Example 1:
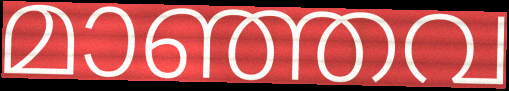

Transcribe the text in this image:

മാഞ്ഞവ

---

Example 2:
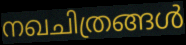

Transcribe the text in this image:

നഖചിത്രങ്ങൾ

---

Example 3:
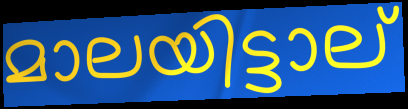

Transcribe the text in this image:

മാലയിട്ടാല്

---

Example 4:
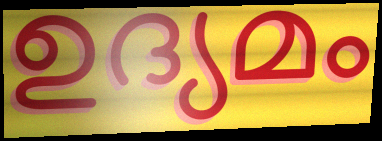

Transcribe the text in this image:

ഉദ്യമം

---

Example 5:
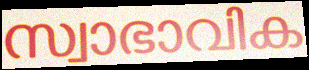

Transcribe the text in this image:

സ്വാഭാവിക